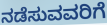
ನಡೆಸುವವರಿಗೆ